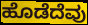
ಹೊಡೆದೆವು